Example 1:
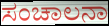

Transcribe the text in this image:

ಸಂಚಾಲನಾ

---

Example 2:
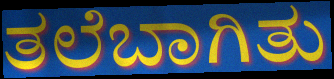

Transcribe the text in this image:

ತಲೆಬಾಗಿತು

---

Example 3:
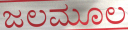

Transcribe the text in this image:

ಜಲಮೂಲ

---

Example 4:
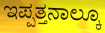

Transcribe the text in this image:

ಇಪ್ಪತ್ತನಾಲ್ಕೂ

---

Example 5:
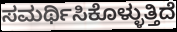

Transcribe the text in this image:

ಸಮರ್ಥಿಸಿಕೊಳ್ಳುತ್ತಿದೆ